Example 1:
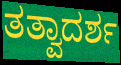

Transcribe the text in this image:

ತತ್ವಾದರ್ಶ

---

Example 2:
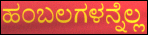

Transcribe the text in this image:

ಹಂಬಲಗಳನ್ನೆಲ್ಲ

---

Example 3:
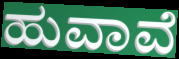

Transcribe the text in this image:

ಹುವಾವೆ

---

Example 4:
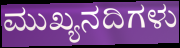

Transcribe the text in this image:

ಮುಖ್ಯನದಿಗಳು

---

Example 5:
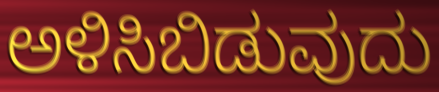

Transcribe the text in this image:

ಅಳಿಸಿಬಿಡುವುದು